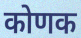
कोणक